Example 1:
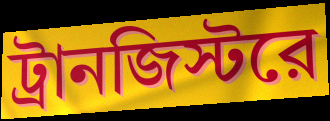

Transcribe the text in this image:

ট্রানজিস্টরে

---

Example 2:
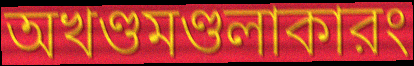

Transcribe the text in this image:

অখণ্ডমণ্ডলাকারং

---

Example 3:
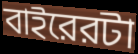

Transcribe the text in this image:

বাইরেরটা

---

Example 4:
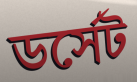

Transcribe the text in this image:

ডর্সেট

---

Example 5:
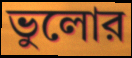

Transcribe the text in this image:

ভুলোর